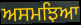
ਅਸਮਝਿਆ